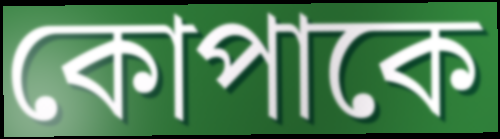
কোপাকে